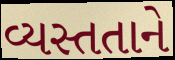
વ્યસ્તતાને